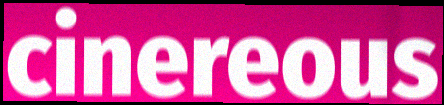
cinereous